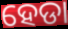
ହେଡା